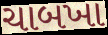
ચાબખા